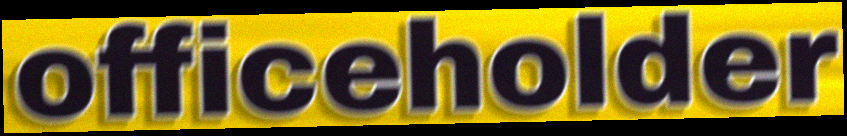
officeholder